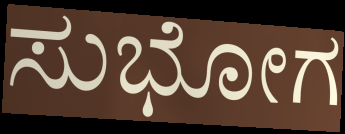
ಸುಭೋಗ